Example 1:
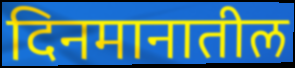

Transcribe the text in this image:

दिनमानातील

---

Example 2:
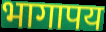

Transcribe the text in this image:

भागापय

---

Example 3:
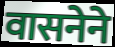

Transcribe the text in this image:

वासनेने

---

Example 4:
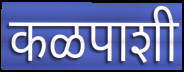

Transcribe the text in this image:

कळपाशी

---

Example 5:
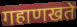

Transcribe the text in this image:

गहाणखते